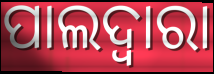
ପାଲଦ୍ୱାରା